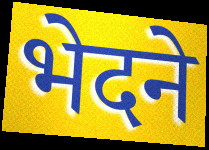
भेदने